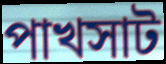
পাখসাট